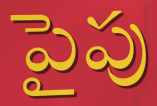
పైపు